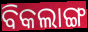
ବିକଲାଙ୍ଗ